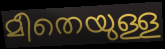
മീതെയുള്ള